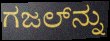
ಗಜಲ್‍ನ್ನು